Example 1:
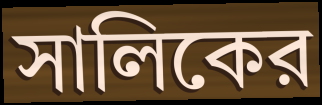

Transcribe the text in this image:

সালিকের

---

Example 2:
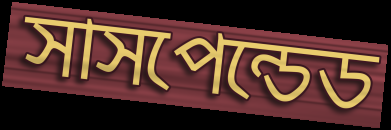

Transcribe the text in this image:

সাসপেন্ডেড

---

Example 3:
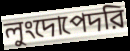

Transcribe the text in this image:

লুংদোপেদরি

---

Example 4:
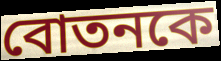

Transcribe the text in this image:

বোতনকে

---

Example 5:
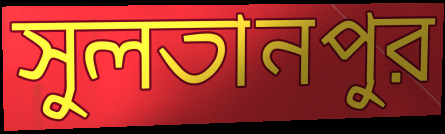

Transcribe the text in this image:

সুলতানপুর